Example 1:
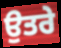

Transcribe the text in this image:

ਉਤਰੇ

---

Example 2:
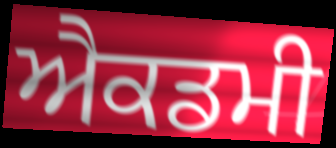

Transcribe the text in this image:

ਐਕਡਮੀ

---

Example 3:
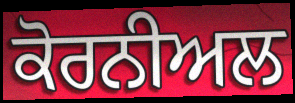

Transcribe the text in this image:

ਕੋਰਨੀਅਲ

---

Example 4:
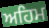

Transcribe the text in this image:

ਅਹਿਮ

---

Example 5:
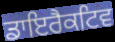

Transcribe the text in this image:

ਡਾਇਰੈਕਟਿਵ